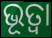
ଭୂତ୍ଵା